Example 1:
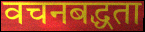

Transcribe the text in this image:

वचनबद्धता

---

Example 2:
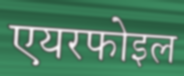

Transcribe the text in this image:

एयरफोइल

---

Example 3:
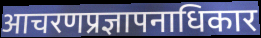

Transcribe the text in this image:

आचरणप्रज्ञापनाधिकार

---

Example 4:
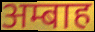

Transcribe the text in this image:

अम्बाह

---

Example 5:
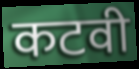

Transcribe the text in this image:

कटवी